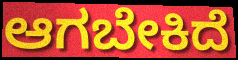
ಆಗಬೇಕಿದೆ